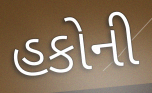
હકોની